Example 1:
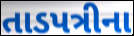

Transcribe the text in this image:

તાડપત્રીના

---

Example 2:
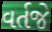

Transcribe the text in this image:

વર્તજે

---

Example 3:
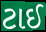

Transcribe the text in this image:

ટાઈ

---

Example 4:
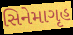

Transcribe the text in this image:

સિનેમાગૃહ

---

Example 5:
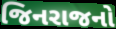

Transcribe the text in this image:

જિનરાજનો